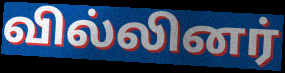
வில்லினர்